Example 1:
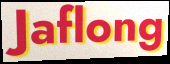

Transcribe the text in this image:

Jaflong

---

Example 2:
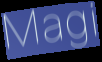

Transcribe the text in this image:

Magi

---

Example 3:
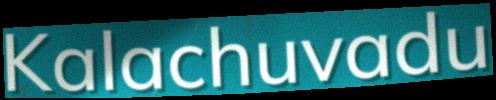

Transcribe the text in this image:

Kalachuvadu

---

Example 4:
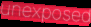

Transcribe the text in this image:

unexposed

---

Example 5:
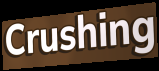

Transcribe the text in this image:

Crushing